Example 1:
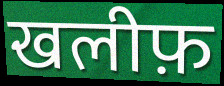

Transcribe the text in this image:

खलीफ़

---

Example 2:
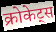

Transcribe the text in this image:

क्रोकेट्स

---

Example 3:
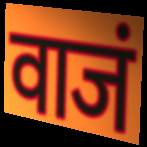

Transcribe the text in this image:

वाजं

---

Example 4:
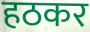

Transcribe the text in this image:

हठकर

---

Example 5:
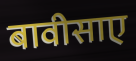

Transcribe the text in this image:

बावीसाए